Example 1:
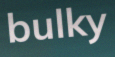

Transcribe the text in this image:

bulky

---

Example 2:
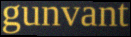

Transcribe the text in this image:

gunvant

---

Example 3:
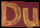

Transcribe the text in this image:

Du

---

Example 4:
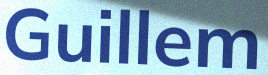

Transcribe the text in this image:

Guillem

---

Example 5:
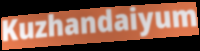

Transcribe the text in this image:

Kuzhandaiyum